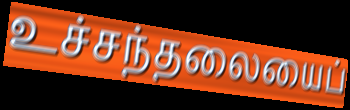
உச்சந்தலையைப்